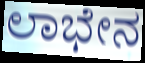
ಲಾಭೇನ